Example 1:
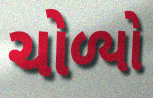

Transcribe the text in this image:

ચોળ્યો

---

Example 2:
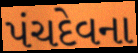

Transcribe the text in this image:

પંચદેવના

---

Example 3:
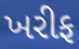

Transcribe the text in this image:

ખરીફ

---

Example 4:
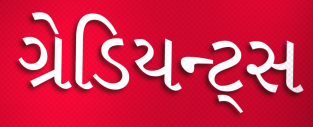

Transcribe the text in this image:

ગ્રેડિયન્ટ્સ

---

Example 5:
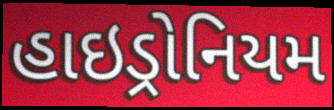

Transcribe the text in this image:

હાઇડ્રોનિયમ